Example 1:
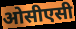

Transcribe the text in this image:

ओसीएसी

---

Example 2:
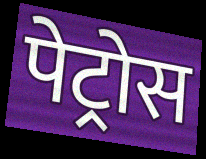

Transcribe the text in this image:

पेट्रोस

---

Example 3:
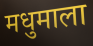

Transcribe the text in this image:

मधुमाला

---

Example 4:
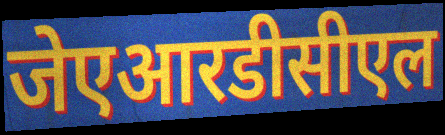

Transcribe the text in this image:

जेएआरडीसीएल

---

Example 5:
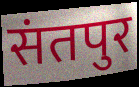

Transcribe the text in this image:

संतपुर